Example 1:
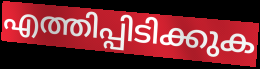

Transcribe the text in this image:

എത്തിപ്പിടിക്കുക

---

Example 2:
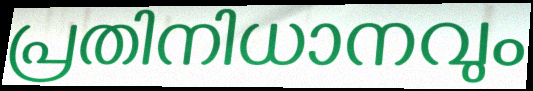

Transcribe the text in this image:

പ്രതിനിധാനവും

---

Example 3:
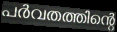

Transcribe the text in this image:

പർവതത്തിന്റെ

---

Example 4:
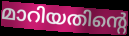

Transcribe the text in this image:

മാറിയതിന്റെ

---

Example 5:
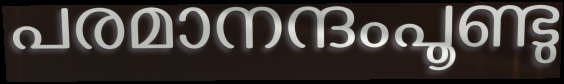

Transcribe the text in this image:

പരമാനന്ദംപൂണ്ടു